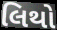
લિથો